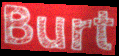
Burt